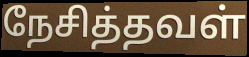
நேசித்தவள்